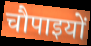
चौपाइयों